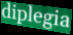
diplegia